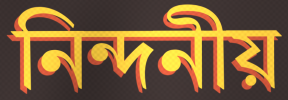
নিন্দনীয়